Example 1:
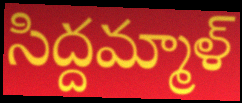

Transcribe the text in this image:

సిద్దమ్మాళ్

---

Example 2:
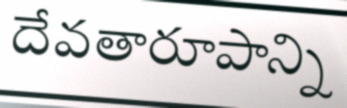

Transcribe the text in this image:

దేవతారూపాన్ని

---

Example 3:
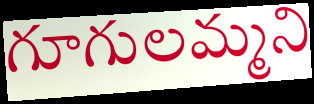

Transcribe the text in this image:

గూగులమ్మని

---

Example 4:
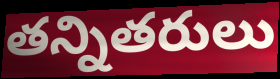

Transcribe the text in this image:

తన్నితరులు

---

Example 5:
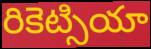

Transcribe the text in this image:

రికెట్సియా